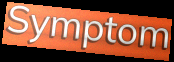
Symptom